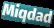
Miqdad